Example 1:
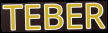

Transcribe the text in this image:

TEBER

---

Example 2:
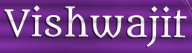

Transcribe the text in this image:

Vishwajit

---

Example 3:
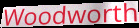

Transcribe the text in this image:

Woodworth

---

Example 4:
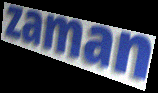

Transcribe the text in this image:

zaman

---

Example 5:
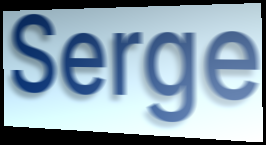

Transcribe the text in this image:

Serge